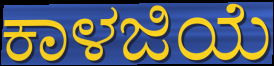
ಕಾಳಜಿಯೆ